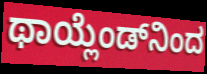
ಥಾಯ್ಲೆಂಡ್‌ನಿಂದ